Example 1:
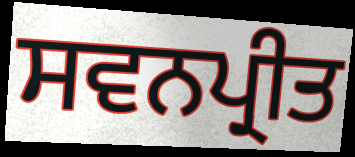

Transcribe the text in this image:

ਸਵਨਪ੍ਰੀਤ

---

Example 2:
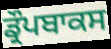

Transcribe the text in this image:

ਡ੍ਰੌਪਬਾਕਸ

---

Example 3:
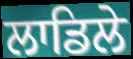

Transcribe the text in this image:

ਲਾਡਿਲੇ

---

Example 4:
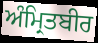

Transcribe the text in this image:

ਅੰਮ੍ਰਿਤਬੀਰ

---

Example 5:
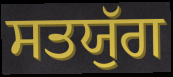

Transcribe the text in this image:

ਸਤਯੁੱਗ